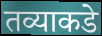
तव्याकडे